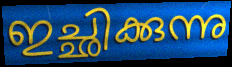
ഇച്ഛിക്കുന്നു